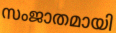
സംജാതമായി